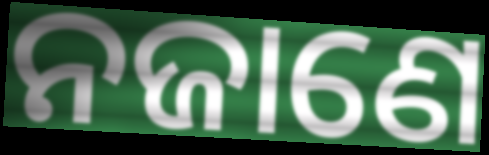
ନଜାଣେ